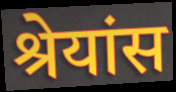
श्रेयांस